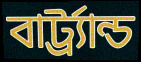
বার্ট্র্যান্ড